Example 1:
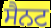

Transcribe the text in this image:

ਸੈਨਟ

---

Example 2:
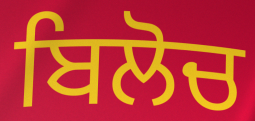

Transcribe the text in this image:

ਬਿਲੋਚ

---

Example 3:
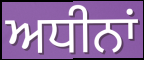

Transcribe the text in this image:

ਅਧੀਨਾਂ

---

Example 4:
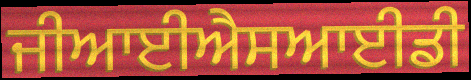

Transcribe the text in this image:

ਜੀਆਈਐਸਆਈਡੀ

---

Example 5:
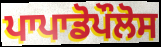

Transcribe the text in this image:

ਪਾਪਾਡੋਪੌਲੋਸ